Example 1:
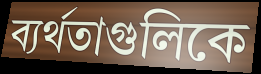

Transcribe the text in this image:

ব্যর্থতাগুলিকে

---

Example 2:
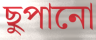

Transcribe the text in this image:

ছুপানো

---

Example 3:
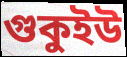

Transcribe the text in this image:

গুকুইউ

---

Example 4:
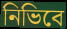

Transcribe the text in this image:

নিভিবে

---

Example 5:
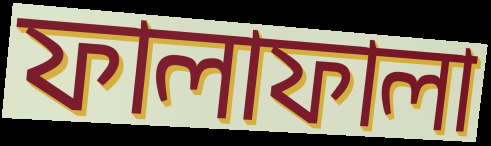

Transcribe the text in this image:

ফালাফালা